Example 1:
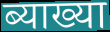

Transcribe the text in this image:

ब्याख्या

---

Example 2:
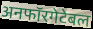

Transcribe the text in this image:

अनफॉरगेटेबल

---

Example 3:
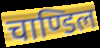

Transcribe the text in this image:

चाण्डिल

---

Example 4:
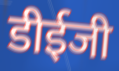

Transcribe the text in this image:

डीईजी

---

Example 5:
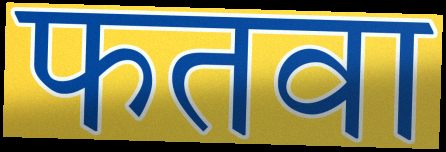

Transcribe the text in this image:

फतवा